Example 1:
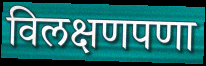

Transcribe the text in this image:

विलक्षणपणा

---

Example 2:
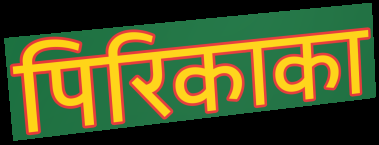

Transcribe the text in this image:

पिरिकाका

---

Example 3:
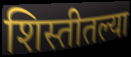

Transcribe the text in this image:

शिस्तीतल्या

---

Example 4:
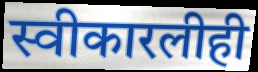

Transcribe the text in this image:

स्वीकारलीही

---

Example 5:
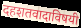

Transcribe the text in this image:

दहशतवादाविषयी